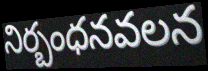
నిర్బంధనవలన